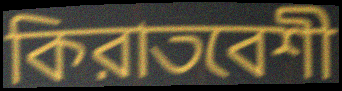
কিরাতবেশী